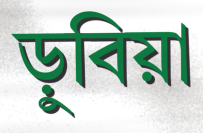
ড়ুবিয়া